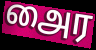
அைர